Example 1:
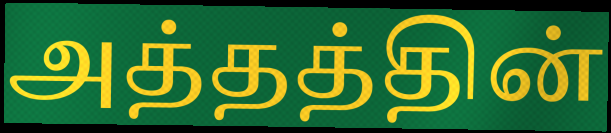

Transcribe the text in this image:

அத்தத்தின்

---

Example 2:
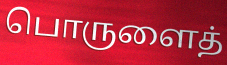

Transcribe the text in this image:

பொருளைத்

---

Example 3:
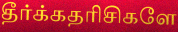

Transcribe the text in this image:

தீர்க்கதரிசிகளே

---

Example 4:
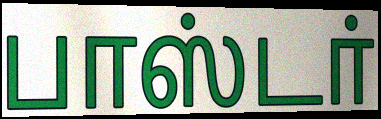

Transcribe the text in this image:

பாஸ்டர்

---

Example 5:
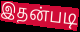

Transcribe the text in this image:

இதன்படி